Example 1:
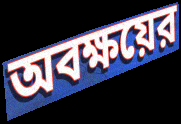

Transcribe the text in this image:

অবক্ষয়ের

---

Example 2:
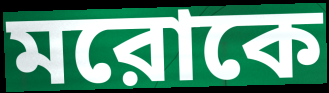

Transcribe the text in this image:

মরোকে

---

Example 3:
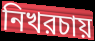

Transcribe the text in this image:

নিখরচায়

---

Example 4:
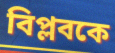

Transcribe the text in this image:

বিপ্লবকে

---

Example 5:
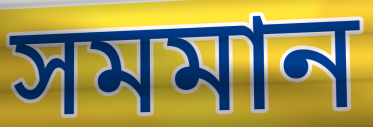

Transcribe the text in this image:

সমমান